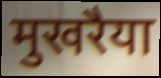
मुखरैया